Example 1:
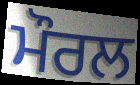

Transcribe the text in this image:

ਮੌਰਲ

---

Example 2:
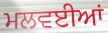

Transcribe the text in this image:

ਮਲਵਈਆਂ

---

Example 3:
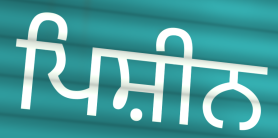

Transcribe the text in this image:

ਪਿਸ਼ੀਨ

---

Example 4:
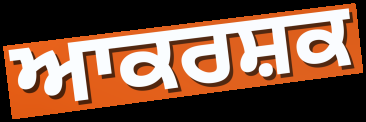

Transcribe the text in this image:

ਆਕਰਸ਼ਕ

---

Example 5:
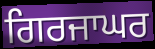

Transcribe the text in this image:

ਗਿਰਜਾਘਰ